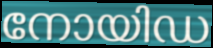
നോയിഡ